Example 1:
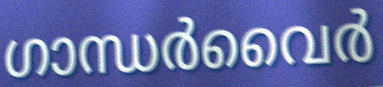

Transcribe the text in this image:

ഗാന്ധർവൈർ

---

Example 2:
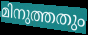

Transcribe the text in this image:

മിനുത്തതും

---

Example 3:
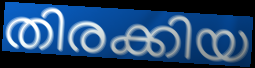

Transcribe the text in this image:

തിരക്കിയ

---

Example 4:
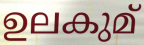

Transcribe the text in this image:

ഉലകുമ്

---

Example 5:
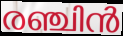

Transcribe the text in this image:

രഞ്ചിൻ